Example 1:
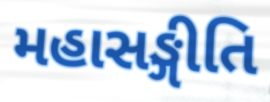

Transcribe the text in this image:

મહાસઙ્ગીતિ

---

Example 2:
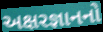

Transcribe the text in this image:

અક્ષરજ્ઞાનનો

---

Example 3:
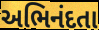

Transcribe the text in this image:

અભિનંદતા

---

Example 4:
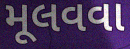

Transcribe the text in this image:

મૂલવવા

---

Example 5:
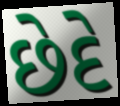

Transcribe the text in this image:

છેદે